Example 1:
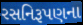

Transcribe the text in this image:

રસનિરૂપણના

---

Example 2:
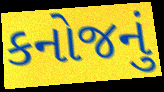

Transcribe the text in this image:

કનોજનું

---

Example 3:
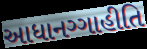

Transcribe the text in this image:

આધાનગ્ગાહીતિ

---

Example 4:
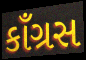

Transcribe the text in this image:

કાઁગ્રસ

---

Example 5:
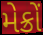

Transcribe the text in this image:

મેક્રોં